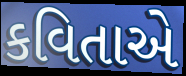
કવિતાએ